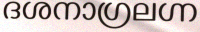
ദശനാഗ്രലഗ്ന